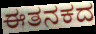
ಈತನಕದ